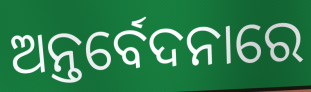
ଅନ୍ତର୍ବେଦନାରେ